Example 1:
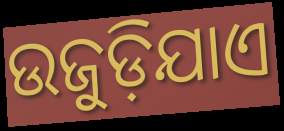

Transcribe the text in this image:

ଉଜୁଡ଼ିଯାଏ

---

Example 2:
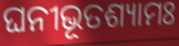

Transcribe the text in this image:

ଘନୀଭୂତଶ୍ୟାମଃ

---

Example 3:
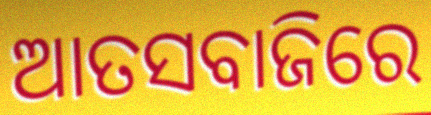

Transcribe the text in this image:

ଆତସବାଜିରେ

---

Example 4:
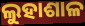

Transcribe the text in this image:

ଲୁହାଶାଳ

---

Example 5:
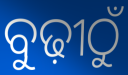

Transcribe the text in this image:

ବୁଢ଼ୀଠୁଁ